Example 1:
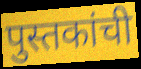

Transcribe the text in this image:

पुस्तकांची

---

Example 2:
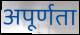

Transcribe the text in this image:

अपूर्णता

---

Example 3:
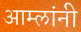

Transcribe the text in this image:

आम्लांनी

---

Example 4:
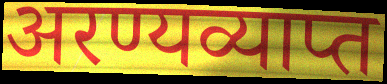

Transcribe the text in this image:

अरण्यव्याप्त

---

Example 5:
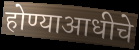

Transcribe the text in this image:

होण्याआधीचे